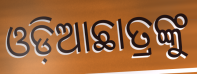
ଓଡ଼ିଆଛାତ୍ରଙ୍କୁ